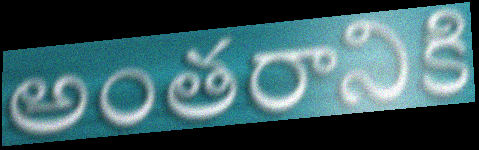
అంతరానికి